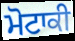
ਮੋਟਾਕੀ